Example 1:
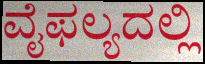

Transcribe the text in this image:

ವೈಫಲ್ಯದಲ್ಲಿ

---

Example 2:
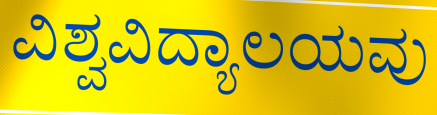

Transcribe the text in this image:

ವಿಶ್ವವಿದ್ಯಾಲಯವು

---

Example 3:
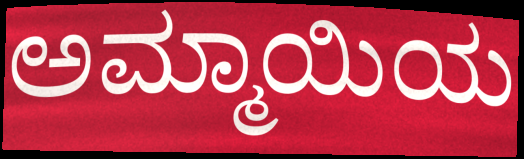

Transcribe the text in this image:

ಅಮ್ಮಾಯಿಯ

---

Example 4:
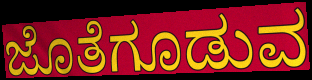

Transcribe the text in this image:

ಜೊತೆಗೂಡುವ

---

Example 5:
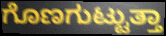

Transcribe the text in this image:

ಗೊಣಗುಟ್ಟುತ್ತಾ